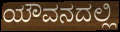
ಯೌವನದಲ್ಲಿ